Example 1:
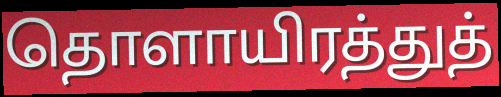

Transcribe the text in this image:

தொளாயிரத்துத்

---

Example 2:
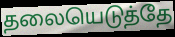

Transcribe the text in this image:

தலையெடுத்தே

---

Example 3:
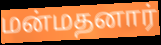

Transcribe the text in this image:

மன்மதனார்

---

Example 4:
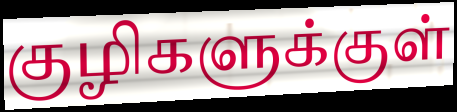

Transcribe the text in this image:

குழிகளுக்குள்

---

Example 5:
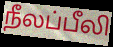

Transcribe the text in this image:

நீலப்பீலி